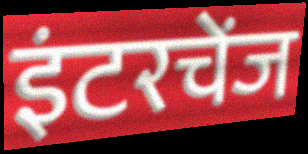
इंटरचेंज